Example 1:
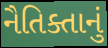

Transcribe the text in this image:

નૈતિક્તાનું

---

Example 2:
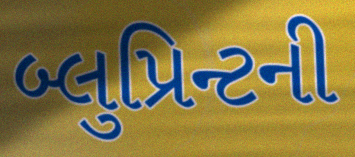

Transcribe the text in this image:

બ્લુપ્રિન્ટની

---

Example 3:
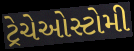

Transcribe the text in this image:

ટ્રેચેઓસ્ટોમી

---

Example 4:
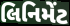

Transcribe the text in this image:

લિનિમેંટ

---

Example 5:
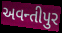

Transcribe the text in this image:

અવન્તીપુર